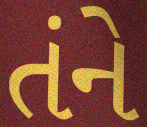
તંને